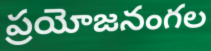
ప్రయోజనంగల